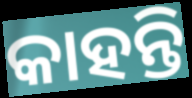
କାହନ୍ତି